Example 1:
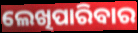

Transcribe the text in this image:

ଲେଖିପାରିବାର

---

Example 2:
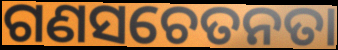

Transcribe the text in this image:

ଗଣସଚେତନତା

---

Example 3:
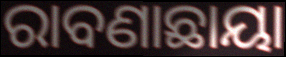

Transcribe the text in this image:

ରାବଣାଛାୟା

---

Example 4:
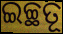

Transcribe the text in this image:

ଇଚ୍ଛତୂ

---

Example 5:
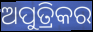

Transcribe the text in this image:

ଅପୁତ୍ରିକର